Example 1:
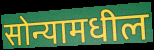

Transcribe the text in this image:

सोन्यामधील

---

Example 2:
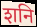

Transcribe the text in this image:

शनि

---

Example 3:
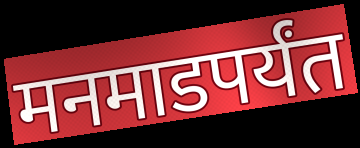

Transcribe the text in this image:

मनमाडपर्यंत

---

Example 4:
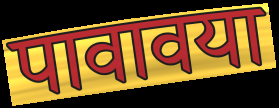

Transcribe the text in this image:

पावावया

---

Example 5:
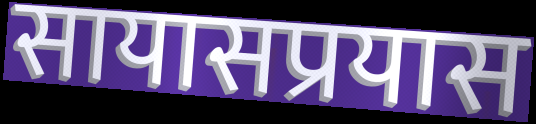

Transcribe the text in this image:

सायासप्रयास